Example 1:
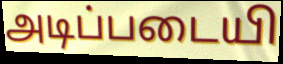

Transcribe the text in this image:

அடிப்படையி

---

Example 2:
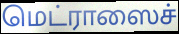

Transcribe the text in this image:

மெட்ராஸைச்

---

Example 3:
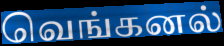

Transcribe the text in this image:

வெங்கனல்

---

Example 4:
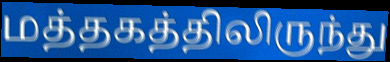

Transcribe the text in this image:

மத்தகத்திலிருந்து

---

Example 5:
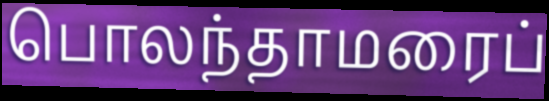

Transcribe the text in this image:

பொலந்தாமரைப்